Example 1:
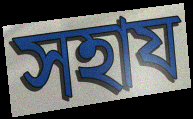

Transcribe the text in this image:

সহায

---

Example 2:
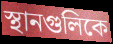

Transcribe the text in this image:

স্থানগুলিকে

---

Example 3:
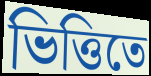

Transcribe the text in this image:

ভিত্তিতে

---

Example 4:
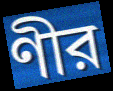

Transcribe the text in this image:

ণীর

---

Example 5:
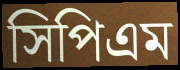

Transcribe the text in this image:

সিপিএম